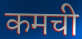
कमची